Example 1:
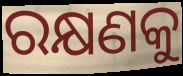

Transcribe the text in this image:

ରକ୍ଷଣକୁ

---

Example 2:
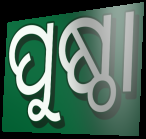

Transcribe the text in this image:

ପୁଷ୍ଠା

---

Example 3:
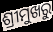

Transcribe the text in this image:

ଶ୍ରୀମୁଖରୁ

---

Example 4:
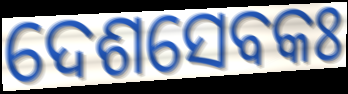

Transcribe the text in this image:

ଦେଶସେବକଃ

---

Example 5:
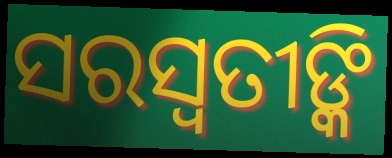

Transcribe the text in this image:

ସରସ୍ୱତୀଙ୍କି